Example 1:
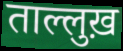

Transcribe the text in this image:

ताल्लुख़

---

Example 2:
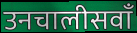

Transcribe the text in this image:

उनचालीसवाँ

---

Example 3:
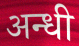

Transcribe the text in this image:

अन्धी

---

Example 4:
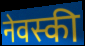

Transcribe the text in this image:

नेवस्की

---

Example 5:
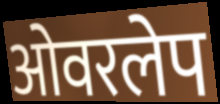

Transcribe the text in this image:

ओवरलेप